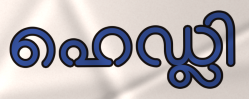
ഹെഡ്ലി